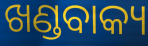
ଖଣ୍ଡବାକ୍ୟ